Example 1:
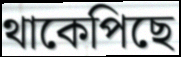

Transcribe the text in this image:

থাকেপিছে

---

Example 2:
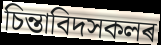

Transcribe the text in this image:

চিন্তাবিদসকলৰ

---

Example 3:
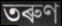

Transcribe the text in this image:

তৰুণ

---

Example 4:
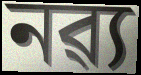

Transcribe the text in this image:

নৱ্য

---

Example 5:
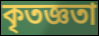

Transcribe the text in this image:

কৃতজ্ঞতা